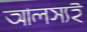
আলস্যই